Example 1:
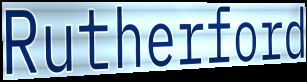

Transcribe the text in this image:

Rutherford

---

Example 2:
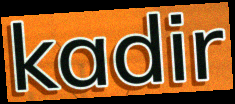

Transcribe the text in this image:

kadir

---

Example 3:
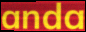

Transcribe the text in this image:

anda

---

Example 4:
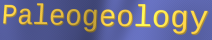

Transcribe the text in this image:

Paleogeology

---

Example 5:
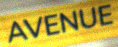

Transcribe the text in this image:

AVENUE